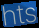
hts